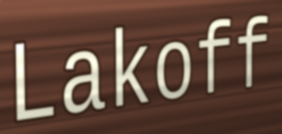
Lakoff